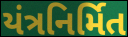
યંત્રનિર્મિત